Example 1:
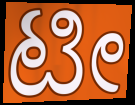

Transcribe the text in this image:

ಟೀ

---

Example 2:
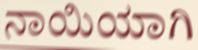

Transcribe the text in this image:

ನಾಯಿಯಾಗಿ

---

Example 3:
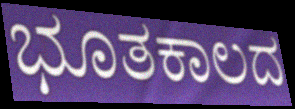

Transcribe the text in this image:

ಭೂತಕಾಲದ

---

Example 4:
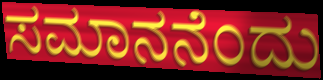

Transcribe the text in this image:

ಸಮಾನನೆಂದು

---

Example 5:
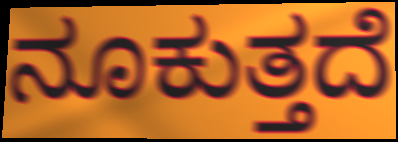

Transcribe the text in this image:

ನೂಕುತ್ತದೆ